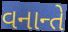
વનાન્તે